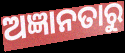
ଅଜ୍ଞାନତାରୁ